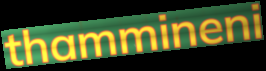
thammineni